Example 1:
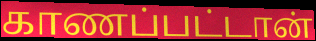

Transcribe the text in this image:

காணப்பட்டான்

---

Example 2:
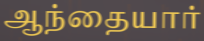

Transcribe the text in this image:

ஆந்தையார்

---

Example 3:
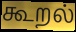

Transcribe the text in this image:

கூறல்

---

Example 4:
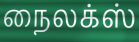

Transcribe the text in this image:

நைலக்ஸ்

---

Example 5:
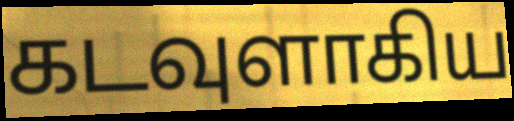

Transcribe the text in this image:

கடவுளாகிய